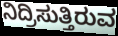
ನಿದ್ರಿಸುತ್ತಿರುವ